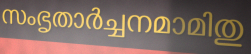
സംഭൃതാർച്ചനമാമിതു